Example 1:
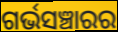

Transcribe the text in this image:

ଗର୍ଭସଞ୍ଚାରର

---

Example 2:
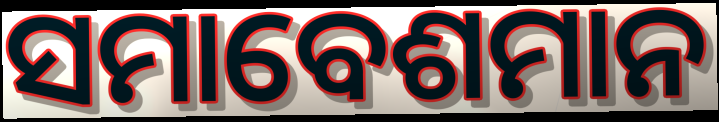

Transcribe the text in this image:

ସମାବେଶମାନ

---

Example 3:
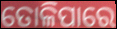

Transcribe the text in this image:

ତୋଳିପାରେ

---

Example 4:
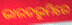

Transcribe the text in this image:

ଭାରତଭୂମିରେ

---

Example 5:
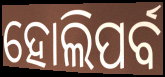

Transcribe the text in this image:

ହୋଲିପର୍ବ